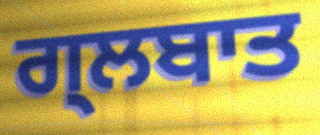
ਗ੍ਲਬਾਤ